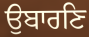
ਉਬਾਰਣਿ